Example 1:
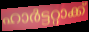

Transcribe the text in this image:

ഹാർട്ടറ്റാക്ക്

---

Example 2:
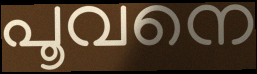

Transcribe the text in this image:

പൂവനെ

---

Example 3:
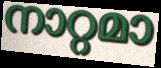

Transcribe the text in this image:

നാറ്റമാ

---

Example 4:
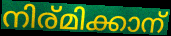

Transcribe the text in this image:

നിര്മിക്കാന്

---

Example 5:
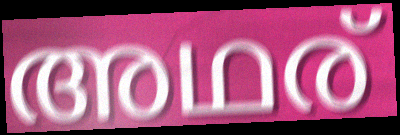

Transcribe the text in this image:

അഥര്